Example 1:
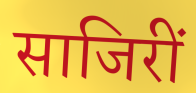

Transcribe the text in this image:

साजिरीं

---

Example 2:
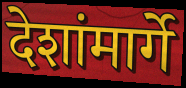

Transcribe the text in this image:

देशांमार्गे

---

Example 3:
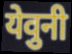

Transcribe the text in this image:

येवुनी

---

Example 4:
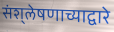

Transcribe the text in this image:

संश्लेषणाच्याद्वारे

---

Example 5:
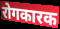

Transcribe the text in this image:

रोगकारक